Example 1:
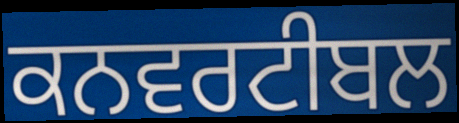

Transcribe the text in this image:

ਕਨਵਰਟੀਬਲ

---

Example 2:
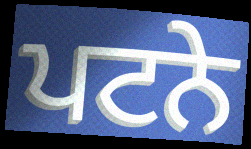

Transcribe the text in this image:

ਪਟਨੇ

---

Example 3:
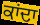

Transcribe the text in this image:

ਕਾਂਦਾ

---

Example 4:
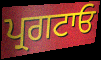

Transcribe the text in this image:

ਪ੍ਰਗਟਾਓ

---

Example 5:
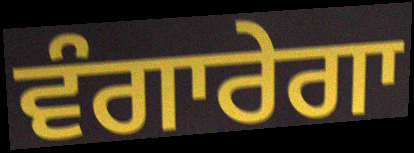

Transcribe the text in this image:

ਵੰਗਾਰੇਗਾ